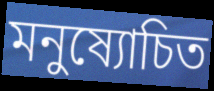
মনুষ্যোচিত